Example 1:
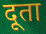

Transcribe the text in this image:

दूता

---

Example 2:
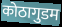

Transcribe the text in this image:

कोठागुडम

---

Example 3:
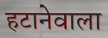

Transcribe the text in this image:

हटानेवाला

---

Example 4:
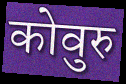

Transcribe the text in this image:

कोवुरु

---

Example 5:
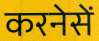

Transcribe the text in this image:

करनेसें